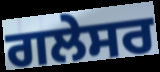
ਗਲੇਸਰ